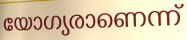
യോഗ്യരാണെന്ന്